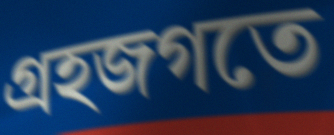
গ্রহজগতে